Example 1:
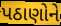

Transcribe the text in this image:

પઠાણોને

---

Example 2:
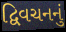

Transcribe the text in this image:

દ્વિવચનનું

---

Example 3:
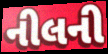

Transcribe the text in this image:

નીલની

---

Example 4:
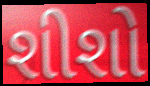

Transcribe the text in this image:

શીશો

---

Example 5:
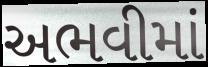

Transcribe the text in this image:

અભવીમાં